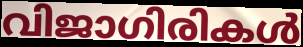
വിജാഗിരികൾ